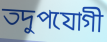
তদুপযোগী